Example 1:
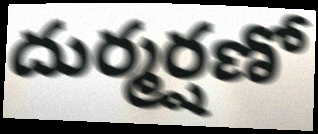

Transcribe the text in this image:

దుర్మర్షణో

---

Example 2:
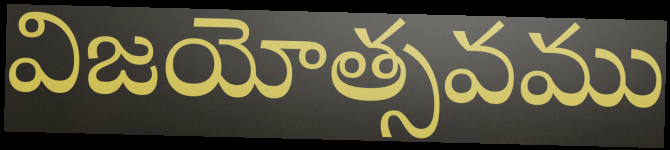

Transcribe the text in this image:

విజయోత్సవము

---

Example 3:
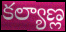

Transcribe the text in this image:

కల్యాణ్ల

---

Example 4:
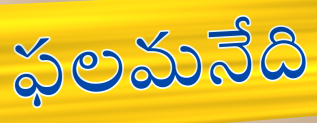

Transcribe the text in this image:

ఫలమనేది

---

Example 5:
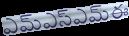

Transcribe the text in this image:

ఎమ్ఎస్ఎమ్ఈ